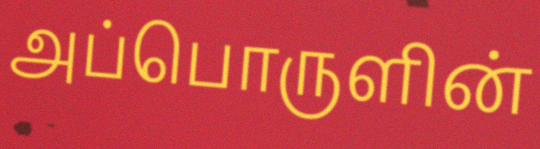
அப்பொருளின்